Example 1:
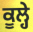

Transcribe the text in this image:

ਕੂਲ੍ਹੇ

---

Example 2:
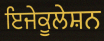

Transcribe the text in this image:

ਇਜੇਕੂਲੇਸ਼ਨ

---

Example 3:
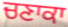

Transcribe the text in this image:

ਚਣਾਕਾ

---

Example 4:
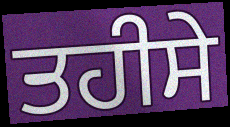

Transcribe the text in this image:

ਤਹੀਸੇ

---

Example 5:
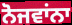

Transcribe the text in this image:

ਨੋਜਵਾਂਨਾ